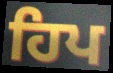
ਹਿਪ